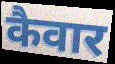
कैवार